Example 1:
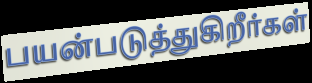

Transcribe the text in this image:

பயன்படுத்துகிறீர்கள்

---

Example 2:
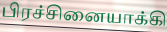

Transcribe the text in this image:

பிரச்சினையாக்கி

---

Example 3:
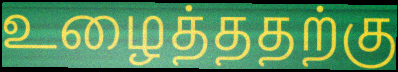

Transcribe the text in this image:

உழைத்ததற்கு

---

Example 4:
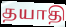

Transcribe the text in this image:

தயாதி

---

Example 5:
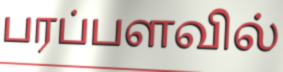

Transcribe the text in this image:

பரப்பளவில்